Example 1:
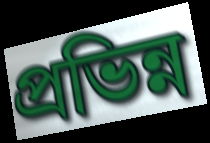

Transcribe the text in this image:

প্রভিন্ন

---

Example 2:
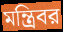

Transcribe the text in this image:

মন্ত্রিবর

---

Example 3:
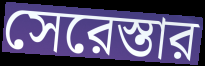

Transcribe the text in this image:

সেরেস্তার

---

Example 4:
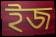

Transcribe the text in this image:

ইজ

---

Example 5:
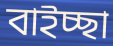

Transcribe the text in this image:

বাইচ্ছা